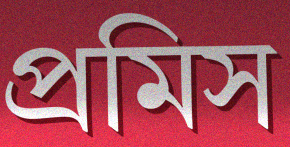
প্রমিস